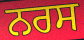
ਨਰਸ